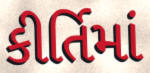
કીર્તિમાં